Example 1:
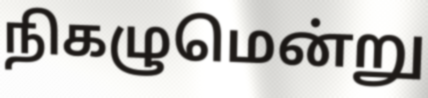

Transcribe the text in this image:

நிகழுமென்று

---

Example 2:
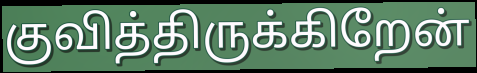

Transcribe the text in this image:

குவித்திருக்கிறேன்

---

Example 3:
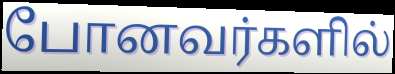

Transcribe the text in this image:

போனவர்களில்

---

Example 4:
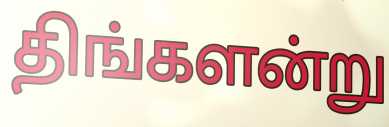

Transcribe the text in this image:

திங்களன்று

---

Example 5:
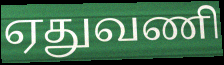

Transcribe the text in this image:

ஏதுவணி